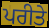
ਪਰੀਤੇ